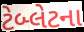
ટેબ્લેટના